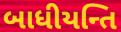
બાધીયન્તિ